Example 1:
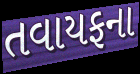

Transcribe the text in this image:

તવાયફના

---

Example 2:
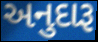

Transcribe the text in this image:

અનુદારૂ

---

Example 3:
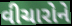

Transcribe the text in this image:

વીચારોને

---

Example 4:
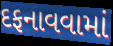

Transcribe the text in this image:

દફનાવવામાં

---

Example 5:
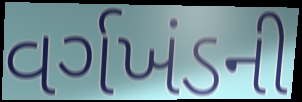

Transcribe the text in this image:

વર્ગખંડની